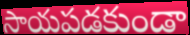
సాయపడకుండా